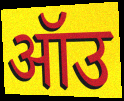
ऑउ